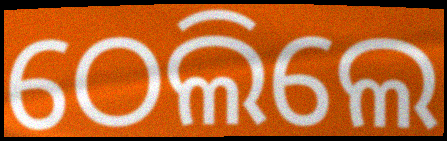
ଠେଲିଲେ